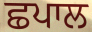
ਛਪਾਲ